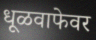
धूळवाफेवर